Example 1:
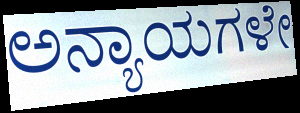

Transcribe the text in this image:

ಅನ್ಯಾಯಗಳೇ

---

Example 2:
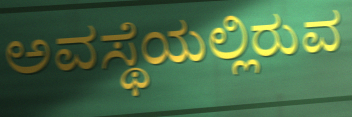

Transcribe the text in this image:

ಅವಸ್ಥೆಯಲ್ಲಿರುವ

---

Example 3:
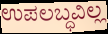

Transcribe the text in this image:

ಉಪಲಬ್ಧವಿಲ್ಲ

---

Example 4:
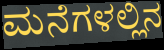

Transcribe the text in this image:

ಮನೆಗಳಲ್ಲಿನ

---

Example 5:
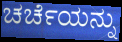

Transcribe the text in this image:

ಚರ್ಚೆಯನ್ನು